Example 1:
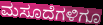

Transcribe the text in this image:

ಮಸೂದೆಗಳಿಗೂ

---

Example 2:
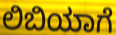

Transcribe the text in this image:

ಲಿಬಿಯಾಗೆ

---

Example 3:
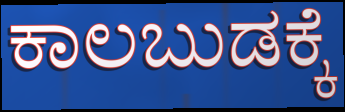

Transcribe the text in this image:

ಕಾಲಬುಡಕ್ಕೆ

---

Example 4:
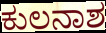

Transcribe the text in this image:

ಕುಲನಾಶ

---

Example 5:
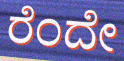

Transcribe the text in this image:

ರೆಂದೇ